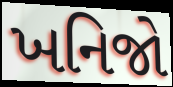
ખનિજો